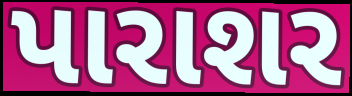
પારાશર